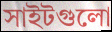
সাইটগুলো